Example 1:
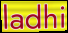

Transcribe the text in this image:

ladhi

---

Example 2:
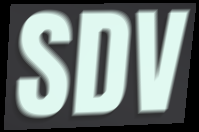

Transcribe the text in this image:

SDV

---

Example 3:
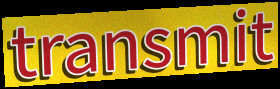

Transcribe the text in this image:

transmit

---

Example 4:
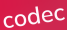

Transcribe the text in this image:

codec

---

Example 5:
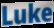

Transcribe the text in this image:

Luke